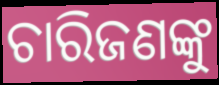
ଚାରିଜଣଙ୍କୁ